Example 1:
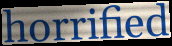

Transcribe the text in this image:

horrified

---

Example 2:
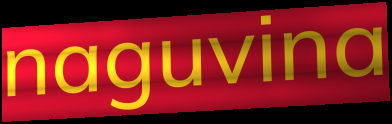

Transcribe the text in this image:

naguvina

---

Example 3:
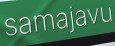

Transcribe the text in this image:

samajavu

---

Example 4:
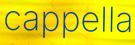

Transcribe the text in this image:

cappella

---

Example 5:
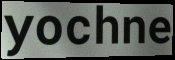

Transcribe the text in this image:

yochne